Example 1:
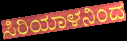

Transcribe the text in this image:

ಸಿರಿಯಾಳನಿಂದ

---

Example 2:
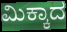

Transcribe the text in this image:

ಮಿಕ್ಕಾದ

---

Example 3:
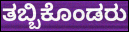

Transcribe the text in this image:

ತಬ್ಬಿಕೊಂಡರು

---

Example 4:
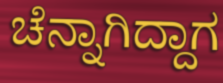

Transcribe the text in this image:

ಚೆನ್ನಾಗಿದ್ದಾಗ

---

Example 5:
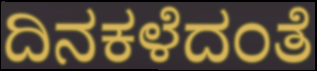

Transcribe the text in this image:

ದಿನಕಳೆದಂತೆ